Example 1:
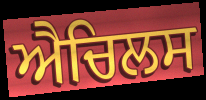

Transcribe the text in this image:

ਐਚਿਲਸ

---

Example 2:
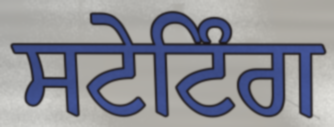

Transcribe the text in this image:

ਸਟੇਟਿੰਗ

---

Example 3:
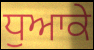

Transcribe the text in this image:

ਧੁਆਕੇ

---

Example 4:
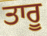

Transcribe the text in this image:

ਤਾਰੂ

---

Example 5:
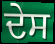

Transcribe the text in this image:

ਦੇਸ